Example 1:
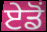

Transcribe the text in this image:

ਏਡੋਂ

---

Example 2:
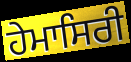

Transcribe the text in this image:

ਹੇਮਾਸਿਰੀ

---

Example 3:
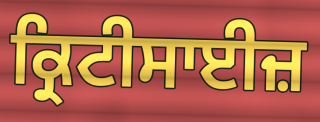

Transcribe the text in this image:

ਕ੍ਰਿਟੀਸਾਈਜ਼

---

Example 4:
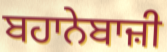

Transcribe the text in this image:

ਬਹਾਨੇਬਾਜ਼ੀ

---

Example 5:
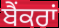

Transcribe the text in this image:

ਬੈਂਕਰਾਂ